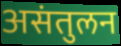
असंतुलन